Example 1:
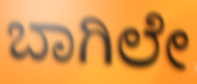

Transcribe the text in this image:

ಬಾಗಿಲೇ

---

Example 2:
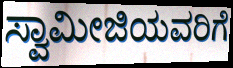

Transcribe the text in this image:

ಸ್ವಾಮೀಜಿಯವರಿಗೆ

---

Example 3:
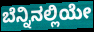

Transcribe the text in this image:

ಬೆನ್ನಿನಲ್ಲಿಯೇ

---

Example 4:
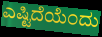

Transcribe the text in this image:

ಎಷ್ಟಿದೆಯೆಂದು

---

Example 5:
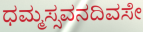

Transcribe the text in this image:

ಧಮ್ಮಸ್ಸವನದಿವಸೇ